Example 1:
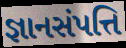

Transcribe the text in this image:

જ્ઞાનસંપત્તિ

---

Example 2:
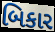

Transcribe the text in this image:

બિકાર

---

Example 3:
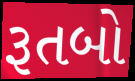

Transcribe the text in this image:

રૂતબો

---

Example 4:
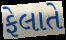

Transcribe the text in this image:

ફેલાતે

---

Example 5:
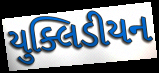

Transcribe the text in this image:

યુક્લિડીયન